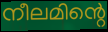
നീലമിന്റെ